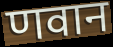
णवान